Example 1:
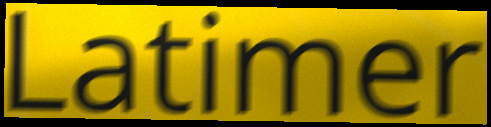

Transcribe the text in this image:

Latimer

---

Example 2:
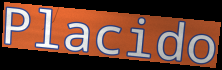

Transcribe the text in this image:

Placido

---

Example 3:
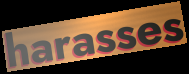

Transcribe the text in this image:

harasses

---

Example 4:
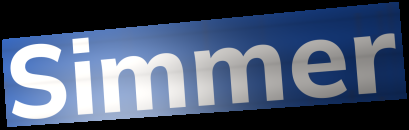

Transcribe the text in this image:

Simmer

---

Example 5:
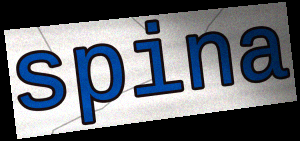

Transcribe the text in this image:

spina